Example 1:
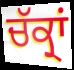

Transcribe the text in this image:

ਚੱਕ੍ਰਾਂ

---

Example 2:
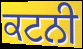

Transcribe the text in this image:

ਕਟਨੀ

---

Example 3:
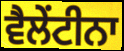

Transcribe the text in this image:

ਵੈਲੇਂਟੀਨਾ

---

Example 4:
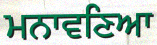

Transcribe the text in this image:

ਮਨਾਵਣਿਆ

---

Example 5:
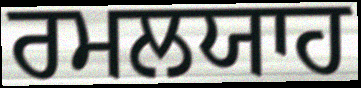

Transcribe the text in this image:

ਰਮਲਯਾਹ